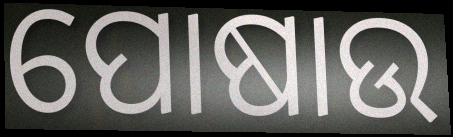
ପୋଷାଉ